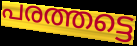
പരത്തട്ടെ